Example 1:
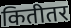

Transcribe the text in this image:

कितीतर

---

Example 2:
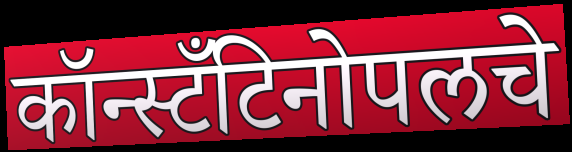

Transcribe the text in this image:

कॉन्स्टँटिनोपलचे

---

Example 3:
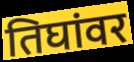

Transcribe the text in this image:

तिघांवर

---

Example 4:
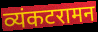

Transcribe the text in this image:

व्यंकटरामन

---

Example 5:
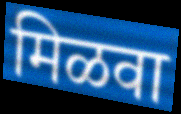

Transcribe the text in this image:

मिळवा